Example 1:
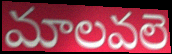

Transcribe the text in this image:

మాలవలె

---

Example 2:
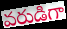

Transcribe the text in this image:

వరుడిగా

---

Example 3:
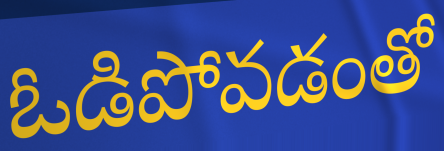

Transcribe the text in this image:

ఓడిపోవడంతో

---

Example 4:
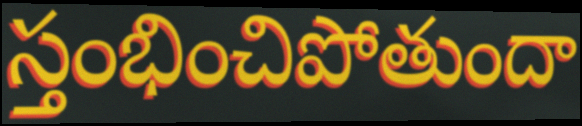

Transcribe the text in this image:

స్తంభించిపోతుందా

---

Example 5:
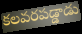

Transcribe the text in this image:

కలవరపడ్డాడు